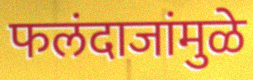
फलंदाजांमुळे